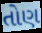
તોણ